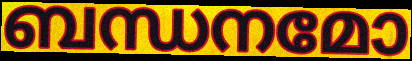
ബന്ധനമോ